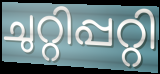
ചുറ്റിപ്പറ്റി